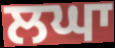
ਲਘਾ